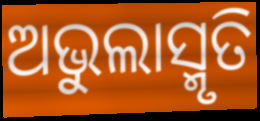
ଅଭୁଲାସ୍ମୃତି